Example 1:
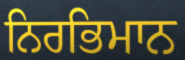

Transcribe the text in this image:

ਨਿਰਭਿਮਾਨ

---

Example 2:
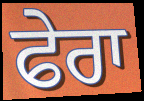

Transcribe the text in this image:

ਫੇਰਾ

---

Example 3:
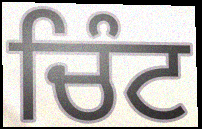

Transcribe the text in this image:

ਚਿੰਟ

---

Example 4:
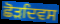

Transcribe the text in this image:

ਛੋੜਦਿਵਸ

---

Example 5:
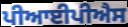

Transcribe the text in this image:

ਪੀਆਈਪੀਐਸ